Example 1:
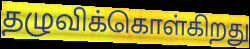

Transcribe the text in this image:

தழுவிக்கொள்கிறது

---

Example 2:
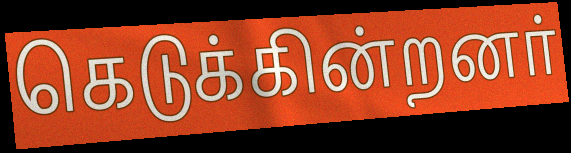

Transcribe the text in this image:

கெடுக்கின்றனர்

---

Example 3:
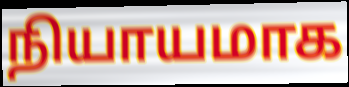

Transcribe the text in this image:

நியாயமாக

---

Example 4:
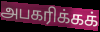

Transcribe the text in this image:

அபகரிக்கக்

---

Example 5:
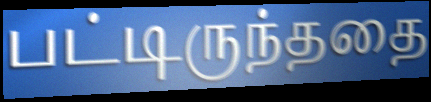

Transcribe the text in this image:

பட்டிருந்ததை